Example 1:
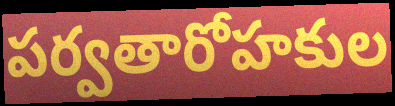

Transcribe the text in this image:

పర్వతారోహకుల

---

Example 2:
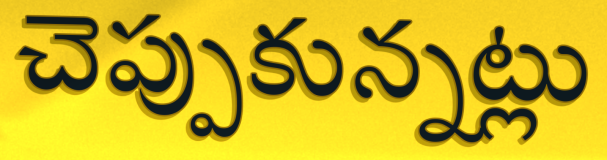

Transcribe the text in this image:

చెప్పుకున్నట్లు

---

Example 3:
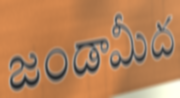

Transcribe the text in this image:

జండామీద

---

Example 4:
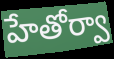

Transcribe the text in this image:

హేతోర్వా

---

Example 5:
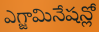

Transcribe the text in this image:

ఎగ్జామినేషన్లో